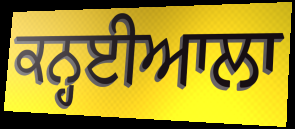
ਕਨ੍ਹਈਆਲਾ